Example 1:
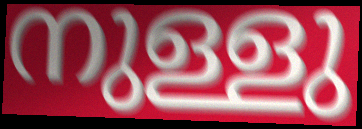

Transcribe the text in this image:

നുള്ളു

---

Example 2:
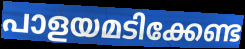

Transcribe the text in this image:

പാളയമടിക്കേണ്ട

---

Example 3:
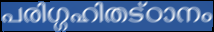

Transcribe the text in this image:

പരിഗ്ഗഹിതട്ഠാനം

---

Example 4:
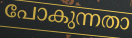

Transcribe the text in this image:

പോകുന്നതാ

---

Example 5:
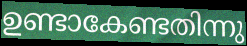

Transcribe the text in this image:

ഉണ്ടാകേണ്ടതിന്നു